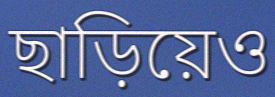
ছাড়িয়েও